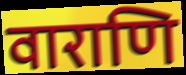
वाराणि